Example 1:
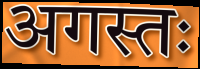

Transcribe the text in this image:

अगस्तः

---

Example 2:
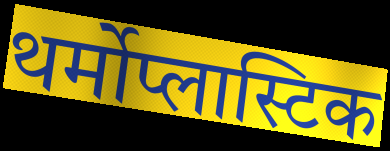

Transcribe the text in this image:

थर्मोप्लास्टिक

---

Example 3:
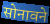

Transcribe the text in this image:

सोनावने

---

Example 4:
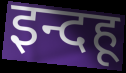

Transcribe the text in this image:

इन्दहू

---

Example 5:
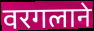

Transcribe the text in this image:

वरगलाने